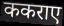
ककराए